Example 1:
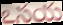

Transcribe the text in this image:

ఽసయ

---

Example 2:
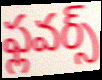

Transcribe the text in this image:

ఫ్లవర్స్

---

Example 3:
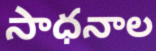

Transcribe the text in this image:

సాధనాల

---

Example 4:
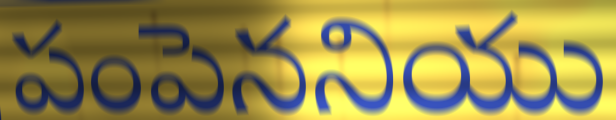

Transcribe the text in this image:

పంపెననియు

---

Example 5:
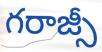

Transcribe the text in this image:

గరాజ్సీ